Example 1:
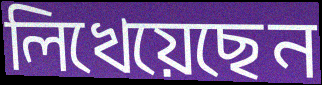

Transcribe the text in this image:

লিখেয়েছেন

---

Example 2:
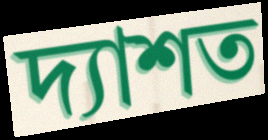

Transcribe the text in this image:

দ্যাশত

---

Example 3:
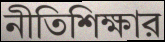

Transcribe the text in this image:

নীতিশিক্ষার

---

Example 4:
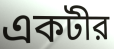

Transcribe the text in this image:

একটীর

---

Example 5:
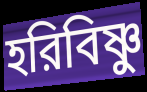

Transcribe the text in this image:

হরিবিষ্ণু